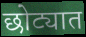
छोट्यात